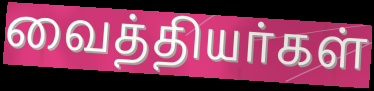
வைத்தியர்கள்